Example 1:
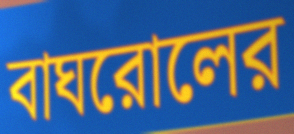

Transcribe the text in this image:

বাঘরোলের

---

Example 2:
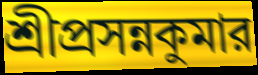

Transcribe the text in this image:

শ্রীপ্রসন্নকুমার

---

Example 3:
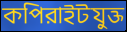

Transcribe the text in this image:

কপিরাইটযুক্ত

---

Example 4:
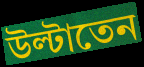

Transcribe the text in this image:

উল্টাতেন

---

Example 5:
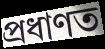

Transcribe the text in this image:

প্রধাণত